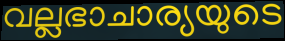
വല്ലഭാചാര്യയുടെ